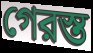
গেরস্ত